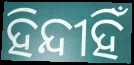
ହିନ୍ଦୀହିଁ